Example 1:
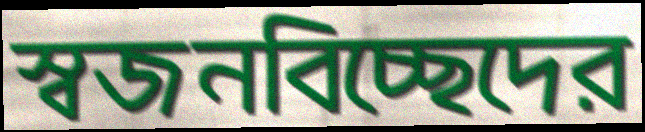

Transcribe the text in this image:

স্বজনবিচ্ছেদের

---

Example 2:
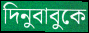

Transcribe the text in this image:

দিনুবাবুকে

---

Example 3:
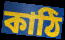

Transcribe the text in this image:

কাঠি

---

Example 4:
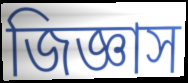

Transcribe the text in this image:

জিজ্ঞাস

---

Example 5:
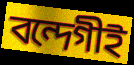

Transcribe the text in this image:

বন্দেগীই